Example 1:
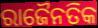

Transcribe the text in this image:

ରାଜୈନତିକ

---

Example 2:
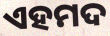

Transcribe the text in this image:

ଏହମଦ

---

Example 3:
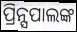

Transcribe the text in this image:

ପ୍ରିନ୍ସପାଲଙ୍କ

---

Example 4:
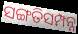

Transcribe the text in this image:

ସଙ୍ଗତିସମ୍ପନ୍ନ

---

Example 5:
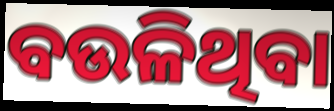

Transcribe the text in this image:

ବଉଳିଥିବା